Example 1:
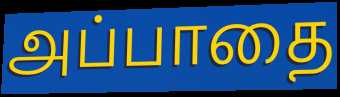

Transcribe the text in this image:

அப்பாதை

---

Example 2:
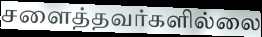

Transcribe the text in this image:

சளைத்தவர்களில்லை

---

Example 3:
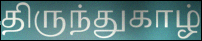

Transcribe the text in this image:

திருந்துகாழ்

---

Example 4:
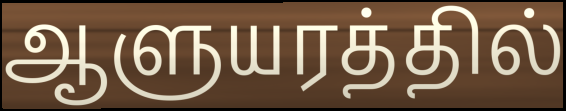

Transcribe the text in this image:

ஆளுயரத்தில்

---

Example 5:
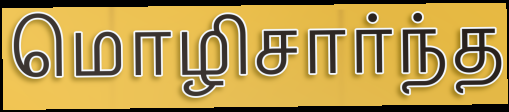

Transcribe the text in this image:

மொழிசார்ந்த